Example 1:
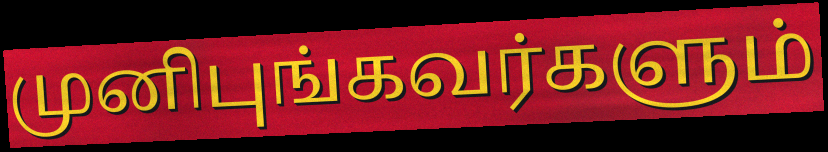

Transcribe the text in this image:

முனிபுங்கவர்களும்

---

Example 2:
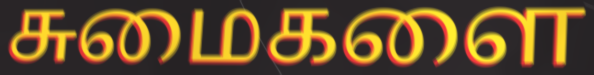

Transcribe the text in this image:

சுமைகளை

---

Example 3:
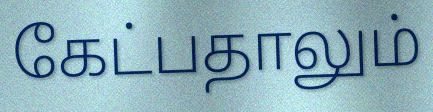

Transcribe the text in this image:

கேட்பதாலும்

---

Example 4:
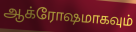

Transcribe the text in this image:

ஆக்ரோஷமாகவும்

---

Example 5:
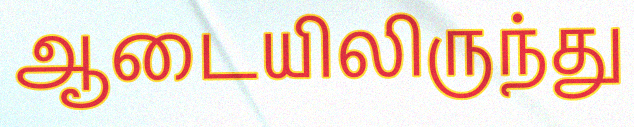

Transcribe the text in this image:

ஆடையிலிருந்து